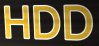
HDD